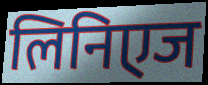
लिनिएज